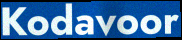
Kodavoor